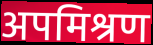
अपमिश्रण